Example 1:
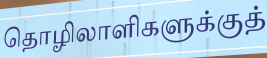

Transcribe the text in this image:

தொழிலாளிகளுக்குத்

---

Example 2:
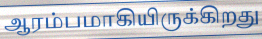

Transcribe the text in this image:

ஆரம்பமாகியிருக்கிறது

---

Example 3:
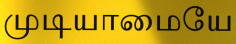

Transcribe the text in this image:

முடியாமையே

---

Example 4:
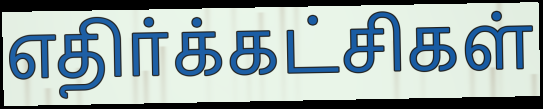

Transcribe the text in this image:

எதிர்க்கட்சிகள்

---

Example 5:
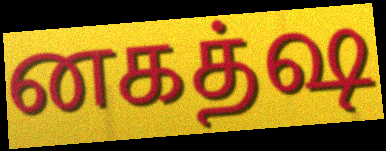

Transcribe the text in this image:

னகத்ஷ